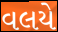
વલયે